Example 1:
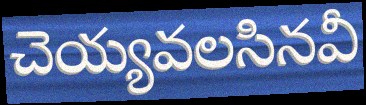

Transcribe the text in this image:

చెయ్యవలసినవీ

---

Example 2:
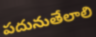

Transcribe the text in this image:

పదునుతేలాలి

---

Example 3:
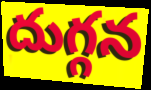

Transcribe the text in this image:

దుగ్గన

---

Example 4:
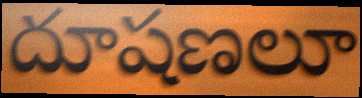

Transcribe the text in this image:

దూషణలూ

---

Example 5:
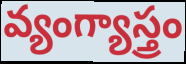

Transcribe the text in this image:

వ్యంగ్యాస్త్రం